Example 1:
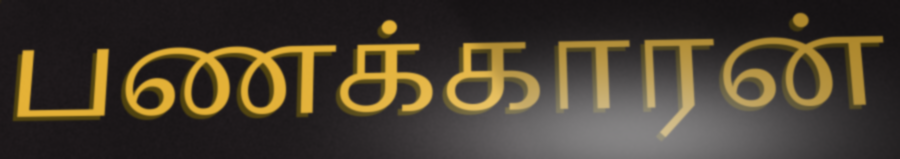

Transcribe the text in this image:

பணக்காரன்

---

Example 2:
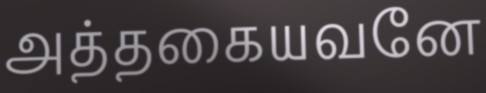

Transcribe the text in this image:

அத்தகையவனே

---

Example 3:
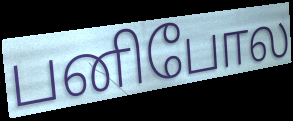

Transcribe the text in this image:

பனிபோல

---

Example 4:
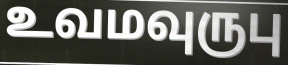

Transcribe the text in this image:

உவமவுருபு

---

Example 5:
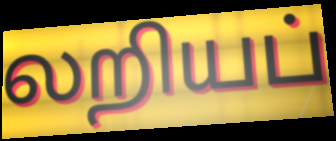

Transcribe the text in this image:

லறியப்